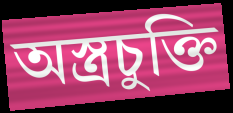
অস্ত্রচুক্তি